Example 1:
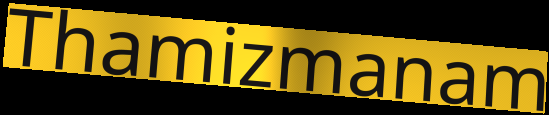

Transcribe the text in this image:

Thamizmanam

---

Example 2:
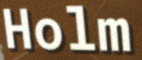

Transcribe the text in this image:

Holm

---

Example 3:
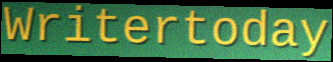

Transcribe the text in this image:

Writertoday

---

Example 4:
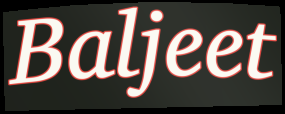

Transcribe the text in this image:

Baljeet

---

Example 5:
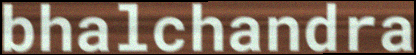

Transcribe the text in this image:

bhalchandra